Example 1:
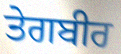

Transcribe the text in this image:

ਤੇਗਬੀਰ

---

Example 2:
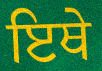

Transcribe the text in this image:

ਇਥੇ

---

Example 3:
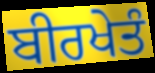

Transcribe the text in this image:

ਬੀਰਖੇਤੰ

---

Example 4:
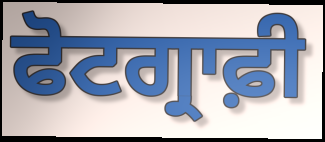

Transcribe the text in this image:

ਫੋਟਗ੍ਰਾਫ਼ੀ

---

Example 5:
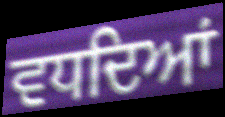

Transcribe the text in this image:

ਵਧਦਿਆਂ